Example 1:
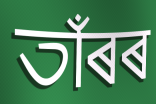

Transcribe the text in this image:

তাঁৰৰ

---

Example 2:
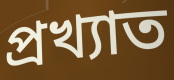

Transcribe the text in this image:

প্ৰখ্যাত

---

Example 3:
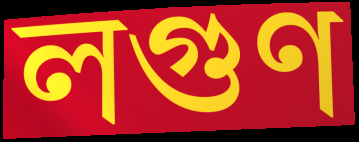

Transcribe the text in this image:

লগুণ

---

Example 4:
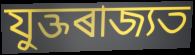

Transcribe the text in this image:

যুক্তৰাজ্যত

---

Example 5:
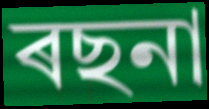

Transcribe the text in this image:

ৰছনা